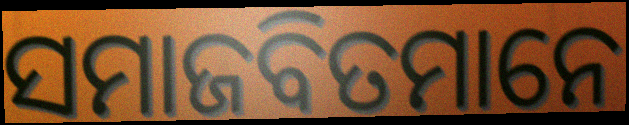
ସମାଜବିତମାନେ